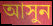
আসুন